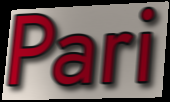
Pari